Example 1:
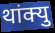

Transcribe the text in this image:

थांक्यु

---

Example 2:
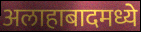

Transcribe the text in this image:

अलाहाबादमध्ये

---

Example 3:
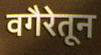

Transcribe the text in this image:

वगैरेतून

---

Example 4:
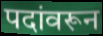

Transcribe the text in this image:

पदांवरून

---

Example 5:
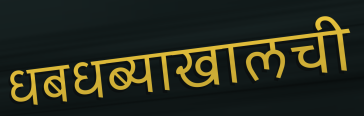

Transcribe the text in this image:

धबधब्याखालची